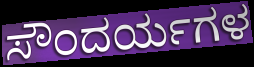
ಸೌಂದರ್ಯಗಳ